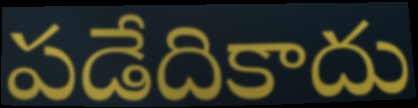
పడేదికాదు